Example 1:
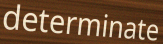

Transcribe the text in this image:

determinate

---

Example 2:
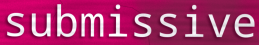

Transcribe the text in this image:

submissive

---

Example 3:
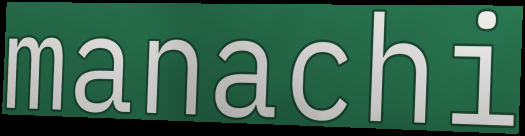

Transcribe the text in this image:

manachi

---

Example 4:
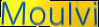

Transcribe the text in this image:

Moulvi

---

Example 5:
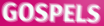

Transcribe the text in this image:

GOSPELS